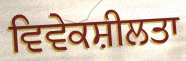
ਵਿਵੇਕਸ਼ੀਲਤਾ